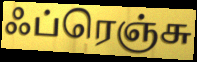
ஃப்ரெஞ்சு